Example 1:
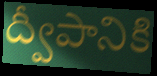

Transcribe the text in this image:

ద్వీపానికి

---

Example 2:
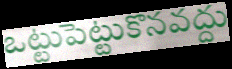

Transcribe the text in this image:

ఒట్టుపెట్టుకొనవద్దు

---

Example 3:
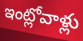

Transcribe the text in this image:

ఇంట్లోవాళ్లు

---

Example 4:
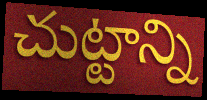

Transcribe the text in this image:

చుట్టాన్ని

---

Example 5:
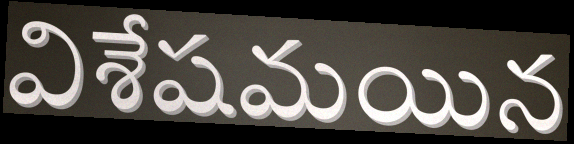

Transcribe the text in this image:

విశేషమయిన